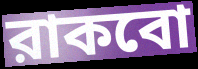
রাকবো